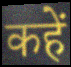
कहें